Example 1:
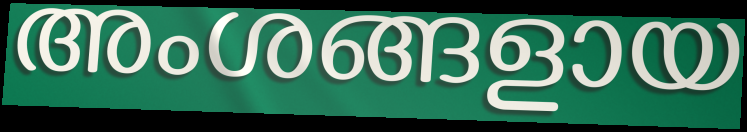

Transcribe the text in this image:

അംശങ്ങളായ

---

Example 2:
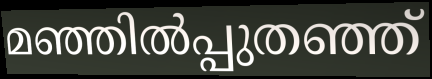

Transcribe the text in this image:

മഞ്ഞിൽപ്പുതഞ്ഞ്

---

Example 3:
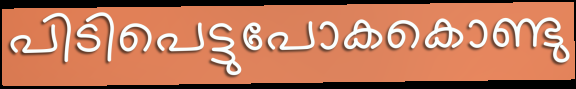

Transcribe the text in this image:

പിടിപെട്ടുപോകകൊണ്ടു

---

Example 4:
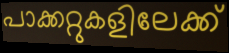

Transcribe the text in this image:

പാക്കറ്റുകളിലേക്ക്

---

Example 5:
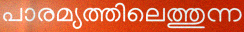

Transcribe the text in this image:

പാരമ്യത്തിലെത്തുന്ന